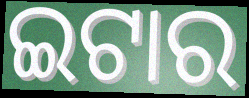
ଇଟାର